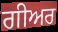
ਗੀਅਰ